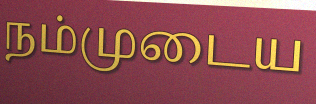
நம்முடைய